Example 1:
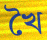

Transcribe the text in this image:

খৈ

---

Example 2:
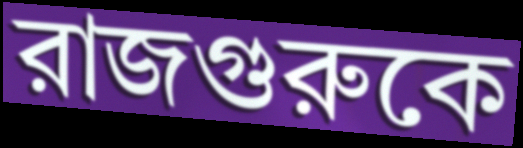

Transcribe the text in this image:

রাজগুরুকে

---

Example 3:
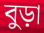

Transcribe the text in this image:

বুড়া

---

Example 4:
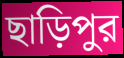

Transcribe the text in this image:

ছাড়িপুর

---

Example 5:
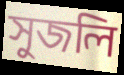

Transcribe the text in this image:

সুজলি